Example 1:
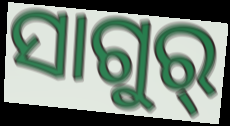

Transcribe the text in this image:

ସାଗୁର୍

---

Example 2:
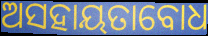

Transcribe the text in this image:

ଅସହାୟତାବୋଧ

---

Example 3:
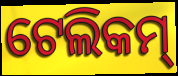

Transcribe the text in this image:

ଟେଲିକମ୍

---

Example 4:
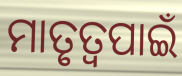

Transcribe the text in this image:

ମାତୃତ୍ୱପାଇଁ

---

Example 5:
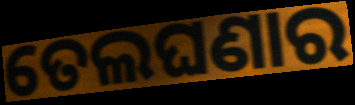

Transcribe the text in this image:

ତେଲଘଣାର